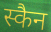
स्कैन